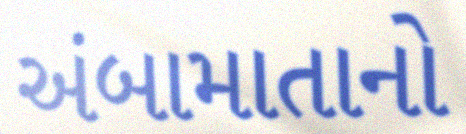
અંબામાતાનો